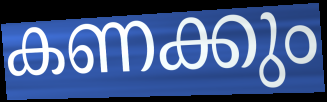
കണക്കും